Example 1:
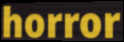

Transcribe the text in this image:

horror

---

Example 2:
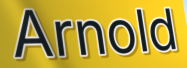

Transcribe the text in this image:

Arnold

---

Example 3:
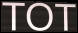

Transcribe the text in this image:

TOT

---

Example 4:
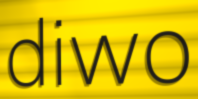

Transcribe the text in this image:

diwo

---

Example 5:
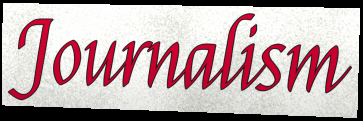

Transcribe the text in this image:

Journalism